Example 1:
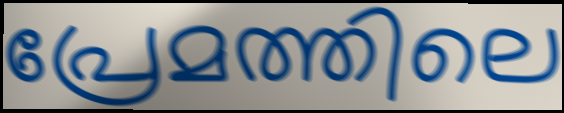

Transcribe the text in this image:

പ്രേമത്തിലെ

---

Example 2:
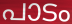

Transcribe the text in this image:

പാടം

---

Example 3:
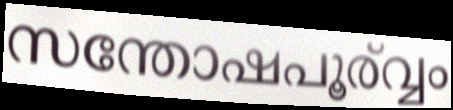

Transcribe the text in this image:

സന്തോഷപൂര്വ്വം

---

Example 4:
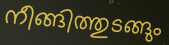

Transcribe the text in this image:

നീങ്ങിത്തുടങ്ങും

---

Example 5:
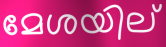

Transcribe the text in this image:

മേശയില്